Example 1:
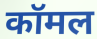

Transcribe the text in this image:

कॉमल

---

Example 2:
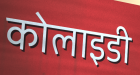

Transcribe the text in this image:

कोलाइडी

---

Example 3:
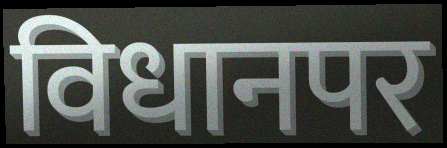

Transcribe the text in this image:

विधानपर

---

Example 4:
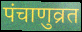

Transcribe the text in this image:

पंचाणुव्रत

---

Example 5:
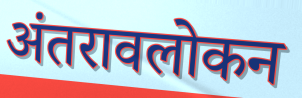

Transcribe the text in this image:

अंतरावलोकन